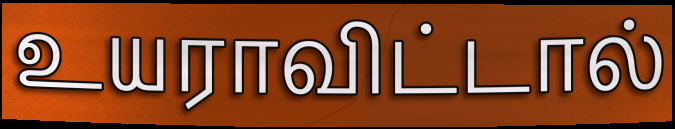
உயராவிட்டால்